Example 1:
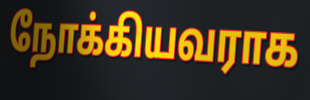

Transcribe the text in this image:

நோக்கியவராக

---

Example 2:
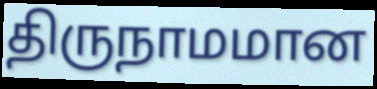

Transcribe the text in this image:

திருநாமமான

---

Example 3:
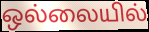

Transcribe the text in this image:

ஒல்லையில்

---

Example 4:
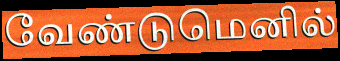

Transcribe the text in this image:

வேண்டுமெனில்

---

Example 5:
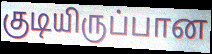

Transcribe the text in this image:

குடியிருப்பான